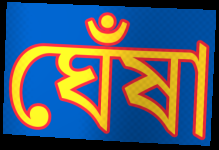
ঘেঁষা